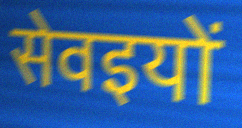
सेवइयों